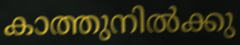
കാത്തുനിൽക്കു